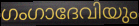
ഗംഗാദേവിയും